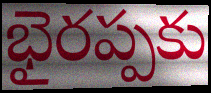
భైరప్పకు